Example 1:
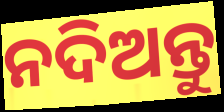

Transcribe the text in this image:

ନଦିଅନ୍ତୁ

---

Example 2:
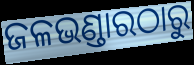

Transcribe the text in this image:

ଜଳଭଣ୍ଡାରଠାରୁ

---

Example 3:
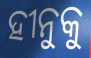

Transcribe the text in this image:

ହୀନୁକୁ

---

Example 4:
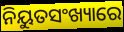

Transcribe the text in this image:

ନିୟୁତସଂଖ୍ୟାରେ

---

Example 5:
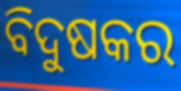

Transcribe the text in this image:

ବିଦୁଷକର